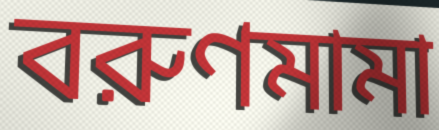
বরুণমামা